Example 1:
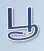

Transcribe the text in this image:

பூ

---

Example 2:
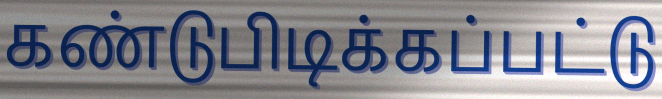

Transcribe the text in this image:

கண்டுபிடிக்கப்பட்டு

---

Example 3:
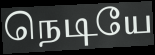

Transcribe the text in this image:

நெடியே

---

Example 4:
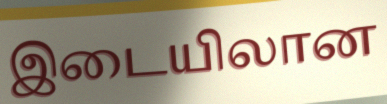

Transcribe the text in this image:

இடையிலான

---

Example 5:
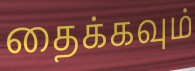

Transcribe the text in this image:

தைக்கவும்